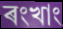
ৰংখাং